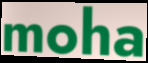
moha